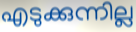
എടുക്കുന്നില്ല